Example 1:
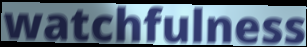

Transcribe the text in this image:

watchfulness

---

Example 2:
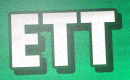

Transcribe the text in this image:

ETT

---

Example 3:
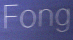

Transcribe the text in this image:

Fong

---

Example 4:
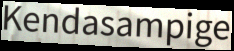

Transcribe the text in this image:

Kendasampige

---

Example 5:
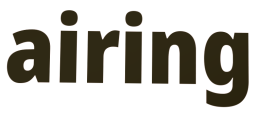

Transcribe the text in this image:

airing